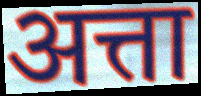
अत्ता